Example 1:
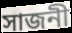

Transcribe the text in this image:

সাজনী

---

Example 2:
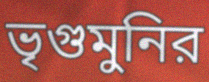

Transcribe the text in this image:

ভৃগুমুনির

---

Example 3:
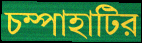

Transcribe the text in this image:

চম্পাহাটির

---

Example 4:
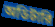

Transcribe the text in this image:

অডিটারি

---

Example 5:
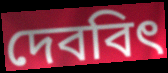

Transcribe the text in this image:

দেববিৎ